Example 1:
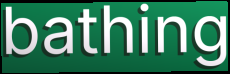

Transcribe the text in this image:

bathing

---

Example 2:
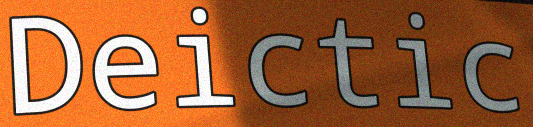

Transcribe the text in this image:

Deictic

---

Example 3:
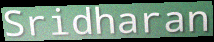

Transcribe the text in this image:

Sridharan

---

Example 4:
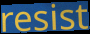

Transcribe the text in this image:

resist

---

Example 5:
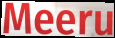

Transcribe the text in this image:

Meeru